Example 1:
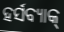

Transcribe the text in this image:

ହର୍ସବ୍ୟାକ୍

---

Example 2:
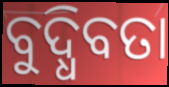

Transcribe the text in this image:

ବୁଦ୍ଧିବତା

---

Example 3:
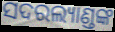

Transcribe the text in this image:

ସଦରଲ୍ୟାଣ୍ଡଙ୍କ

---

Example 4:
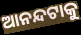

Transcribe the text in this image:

ଆନନ୍ଦଟାକୁ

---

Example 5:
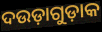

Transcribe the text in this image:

ଦଉଡ଼ାଗୁଡ଼ାକ